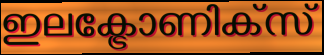
ഇലക്ട്രോണിക്‌സ്